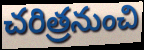
చరిత్రనుంచి